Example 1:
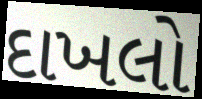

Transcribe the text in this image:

દાખલો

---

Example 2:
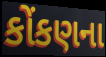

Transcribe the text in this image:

કોંકણના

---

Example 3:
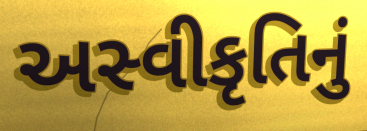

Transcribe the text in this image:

અસ્વીકૃતિનું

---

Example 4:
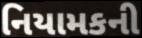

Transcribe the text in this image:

નિયામકની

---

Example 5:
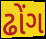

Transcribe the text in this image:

ઢોંગ